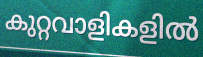
കുറ്റവാളികളിൽ